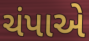
ચંપાએ